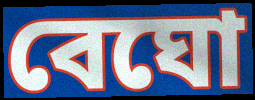
বেঘো